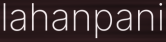
lahanpani